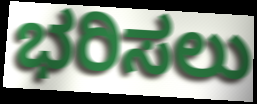
ಭರಿಸಲು